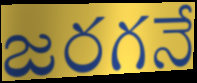
జరగనే